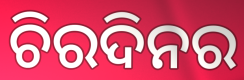
ଚିରଦିନର